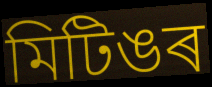
মিটিঙৰ